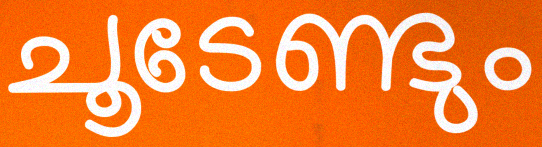
ചൂടേണ്ടും